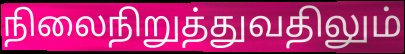
நிலைநிறுத்துவதிலும்